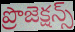
ప్రొజెక్షన్స్